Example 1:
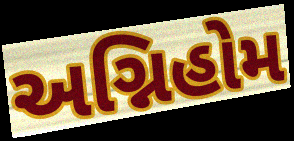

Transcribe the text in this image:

અગ્નિહોમ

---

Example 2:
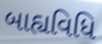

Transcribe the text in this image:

બાહ્યવિધિ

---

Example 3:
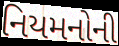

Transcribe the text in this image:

નિયમનોની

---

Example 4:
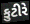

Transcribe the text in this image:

કુટીરે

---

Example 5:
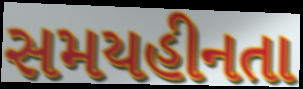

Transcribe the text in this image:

સમયહીનતા